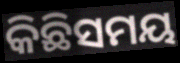
କିଛିସମୟ